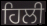
ਹਿਲੀ